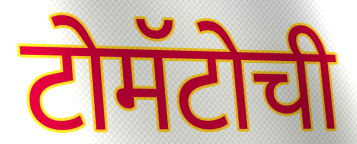
टोमॅटोची